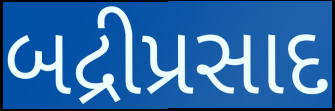
બદ્રીપ્રસાદ